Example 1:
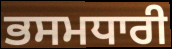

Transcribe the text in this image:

ਭਸਮਧਾਰੀ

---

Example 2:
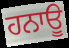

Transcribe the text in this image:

ਹਨਾਊ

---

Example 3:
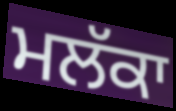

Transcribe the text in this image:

ਮਲੱਕਾ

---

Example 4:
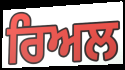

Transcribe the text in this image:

ਰਿਅਲ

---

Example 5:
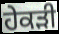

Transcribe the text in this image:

ਹੇਕੜੀ